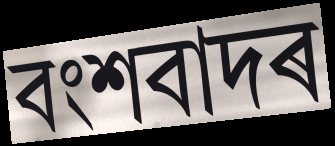
বংশবাদৰ